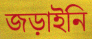
জড়াইনি